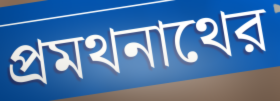
প্রমথনাথের